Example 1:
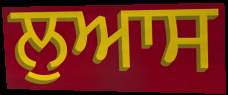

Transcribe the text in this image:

ਲੁਆਸ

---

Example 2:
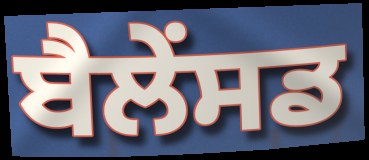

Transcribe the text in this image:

ਬੈਲੇਂਸਡ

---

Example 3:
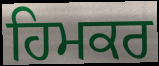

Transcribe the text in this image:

ਹਿਮਕਰ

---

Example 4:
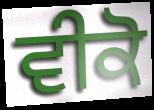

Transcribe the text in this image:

ਵੀਕੋ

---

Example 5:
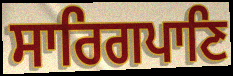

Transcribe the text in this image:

ਸਾਰਿਗਪਾਣਿ